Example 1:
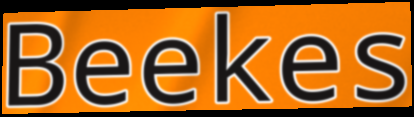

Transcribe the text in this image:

Beekes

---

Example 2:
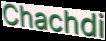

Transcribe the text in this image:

Chachdi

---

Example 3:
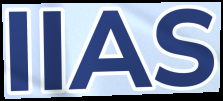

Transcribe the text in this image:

IIAS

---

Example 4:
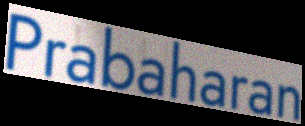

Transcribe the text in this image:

Prabaharan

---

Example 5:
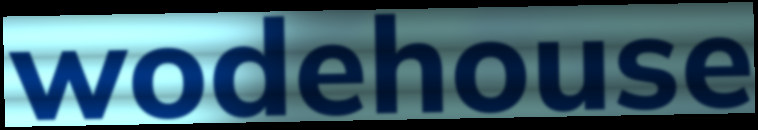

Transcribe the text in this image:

wodehouse